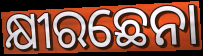
କ୍ଷୀରଛେନା